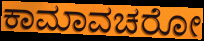
ಕಾಮಾವಚರೋ